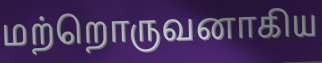
மற்றொருவனாகிய